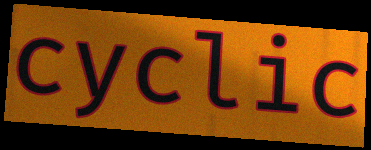
cyclic